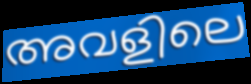
അവളിലെ